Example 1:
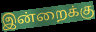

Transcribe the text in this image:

இன்றைக்கு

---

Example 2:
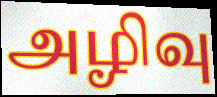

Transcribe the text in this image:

அழிவு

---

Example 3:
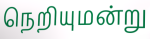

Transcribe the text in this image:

நெறியுமன்று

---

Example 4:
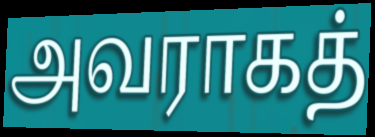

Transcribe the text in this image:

அவராகத்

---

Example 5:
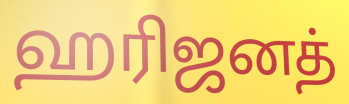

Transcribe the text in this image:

ஹரிஜனத்